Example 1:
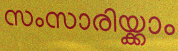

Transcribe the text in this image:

സംസാരിയ്ക്കാം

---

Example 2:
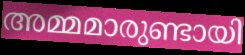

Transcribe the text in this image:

അമ്മമാരുണ്ടായി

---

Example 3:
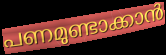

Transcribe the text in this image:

പണമുണ്ടാക്കാൻ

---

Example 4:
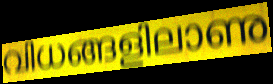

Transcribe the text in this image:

വിധങ്ങളിലാണു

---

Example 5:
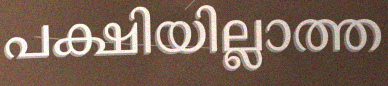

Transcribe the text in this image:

പക്ഷിയില്ലാത്ത